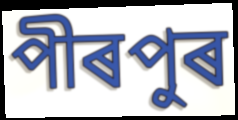
পীৰপুৰ